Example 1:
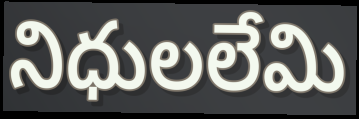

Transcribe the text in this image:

నిధులలేమి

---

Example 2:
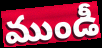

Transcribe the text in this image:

ముండీ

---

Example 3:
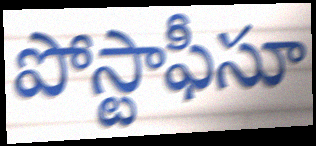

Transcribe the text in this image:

పోస్టాఫీసూ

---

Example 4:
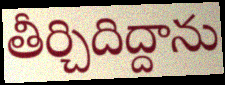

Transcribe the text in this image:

తీర్చిదిద్దాను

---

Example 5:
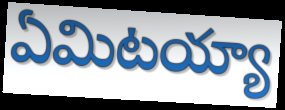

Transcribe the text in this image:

ఏమిటయ్యా